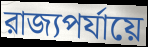
রাজ্যপর্যায়ে